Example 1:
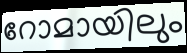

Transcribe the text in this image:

റോമായിലും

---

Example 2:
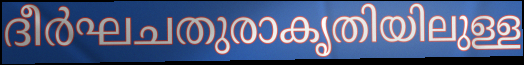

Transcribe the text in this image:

ദീർഘചതുരാകൃതിയിലുള്ള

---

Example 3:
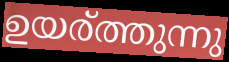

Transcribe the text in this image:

ഉയര്ത്തുന്നു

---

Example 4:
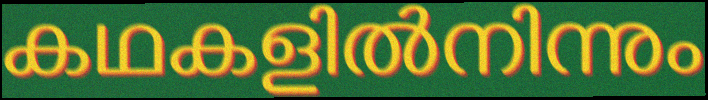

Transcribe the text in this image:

കഥകളിൽനിന്നും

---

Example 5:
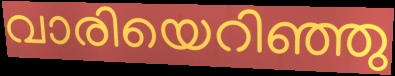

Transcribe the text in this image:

വാരിയെറിഞ്ഞു